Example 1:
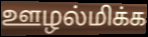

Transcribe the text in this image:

ஊழல்மிக்க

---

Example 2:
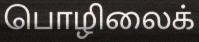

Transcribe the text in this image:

பொழிலைக்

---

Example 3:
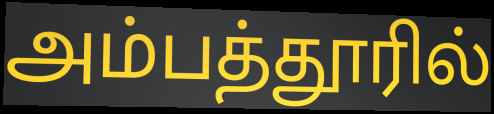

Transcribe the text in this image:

அம்பத்தூரில்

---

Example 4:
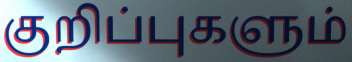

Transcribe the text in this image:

குறிப்புகளும்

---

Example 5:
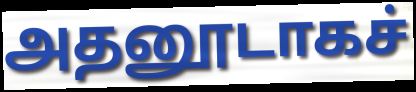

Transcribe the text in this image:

அதனூடாகச்